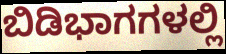
ಬಿಡಿಭಾಗಗಳಲ್ಲಿ